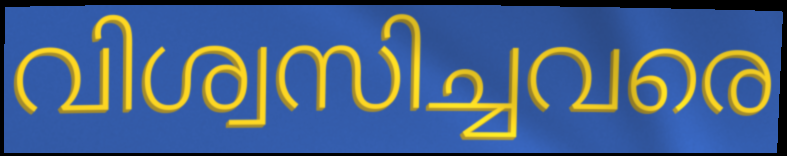
വിശ്വസിച്ചവരെ